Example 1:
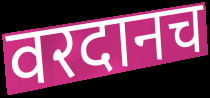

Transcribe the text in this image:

वरदानच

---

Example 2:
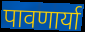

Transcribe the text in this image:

पावणार्या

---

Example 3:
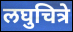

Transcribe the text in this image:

लघुचित्रे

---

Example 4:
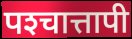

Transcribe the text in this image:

पश्‍चात्तापी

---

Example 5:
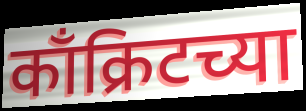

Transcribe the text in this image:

काँक्रिटच्या